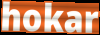
hokar